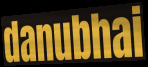
danubhai